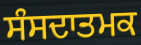
ਸੰਸਦਾਤਮਕ